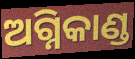
ଅଗ୍ନିକାଣ୍ଡ